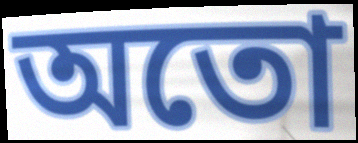
অতো